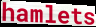
hamlets